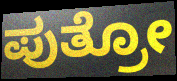
ಪುತ್ರೋ